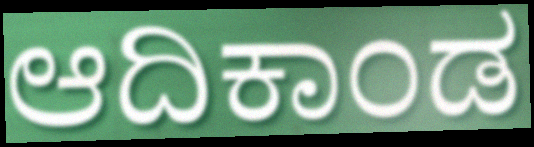
ಆದಿಕಾಂಡ